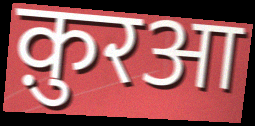
क़ुरआ